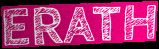
ERATH